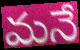
మనే